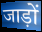
जाड़ों